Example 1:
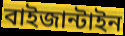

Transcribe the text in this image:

বাইজান্টাইন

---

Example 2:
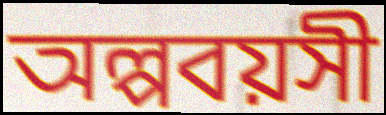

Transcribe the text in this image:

অল্পবয়সী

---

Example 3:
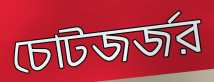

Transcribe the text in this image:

চোটজর্জর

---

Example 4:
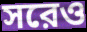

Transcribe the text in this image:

সরেও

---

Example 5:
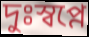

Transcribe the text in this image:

দুঃস্বপ্নে